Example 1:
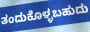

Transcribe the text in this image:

ತಂದುಕೊಳ್ಳಬಹುದು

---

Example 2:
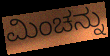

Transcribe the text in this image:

ಮಿಂಚನ್ನು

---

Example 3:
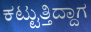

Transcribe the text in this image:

ಕಟ್ಟುತ್ತಿದ್ದಾಗ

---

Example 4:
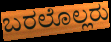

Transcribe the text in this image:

ಬರಲೊಲ್ಲರು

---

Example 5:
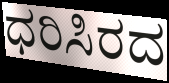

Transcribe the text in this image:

ಧರಿಸಿರದ